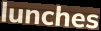
lunches